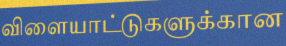
விளையாட்டுகளுக்கான